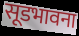
सूडभावना